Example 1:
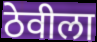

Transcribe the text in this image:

ठेवीला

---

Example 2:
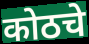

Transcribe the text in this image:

कोठचे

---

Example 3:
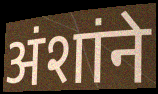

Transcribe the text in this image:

अंशांने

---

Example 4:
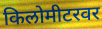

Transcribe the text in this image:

किलोमीटरवर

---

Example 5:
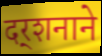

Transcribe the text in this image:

दर्शनाने